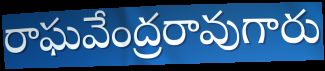
రాఘవేంద్రరావుగారు